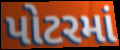
પોટરમાં